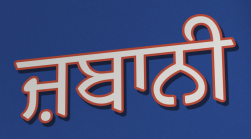
ਜ਼ਬਾਨੀ